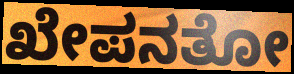
ಖೇಪನತೋ